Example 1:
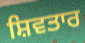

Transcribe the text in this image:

ਸ਼ਿਵਤਾਰ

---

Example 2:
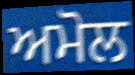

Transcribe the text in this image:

ਅਮੋਲ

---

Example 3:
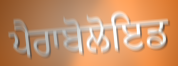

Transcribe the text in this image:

ਪੈਰਾਬੋਲੋਇਡ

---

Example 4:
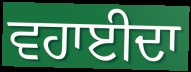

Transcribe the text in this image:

ਵਹਾਈਦਾ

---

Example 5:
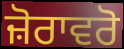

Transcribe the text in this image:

ਜ਼ੋਰਾਵਰੋ